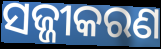
ସଜ୍ଜୀକରଣ